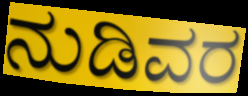
ನುಡಿವರ